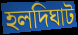
হলদিঘাট